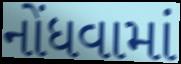
નોંધવામાં